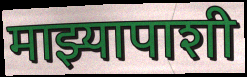
माझ्यापाशी